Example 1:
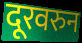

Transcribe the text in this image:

दूरवरुन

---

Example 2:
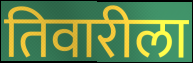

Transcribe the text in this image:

तिवारीला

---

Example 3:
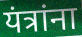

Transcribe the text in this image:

यंत्रांना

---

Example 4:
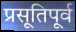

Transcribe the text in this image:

प्रसूतिपूर्व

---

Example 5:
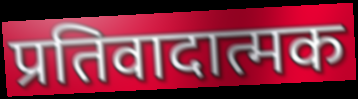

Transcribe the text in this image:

प्रतिवादात्मक